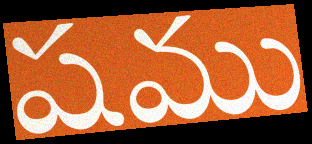
షము